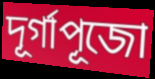
দূর্গাপূজো